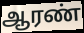
ஆரண்